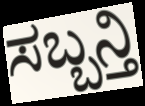
ಸಬ್ಬನ್ತಿ